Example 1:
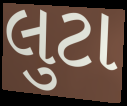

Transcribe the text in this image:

લુટા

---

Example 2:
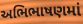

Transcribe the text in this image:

અભિભાષણમાં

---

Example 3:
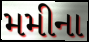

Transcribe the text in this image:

મમીના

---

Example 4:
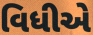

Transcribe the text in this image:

વિધીએ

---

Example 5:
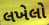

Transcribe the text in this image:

લખેલો